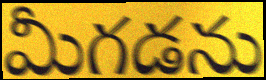
మీగడను